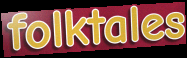
folktales